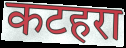
कटहरा